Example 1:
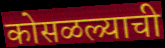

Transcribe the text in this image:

कोसळल्याची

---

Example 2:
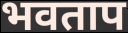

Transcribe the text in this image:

भवताप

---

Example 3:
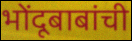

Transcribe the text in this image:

भोंदूबाबांची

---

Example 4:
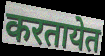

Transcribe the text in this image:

करतायेत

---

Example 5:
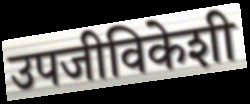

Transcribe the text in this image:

उपजीविकेशी